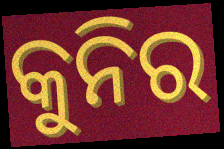
କୁନିର